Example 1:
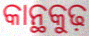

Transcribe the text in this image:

କାନ୍ଥକୁଢ଼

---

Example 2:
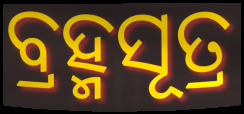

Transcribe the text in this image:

ବ୍ରହ୍ମସୂତ୍ର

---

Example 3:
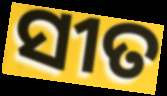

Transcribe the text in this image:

ସୀତ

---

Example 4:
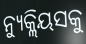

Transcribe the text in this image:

ନ୍ୟୁକ୍ଲିୟସକୁ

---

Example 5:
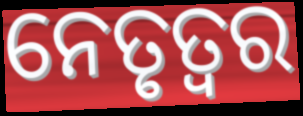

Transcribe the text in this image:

ନେତୃତ୍ୱର